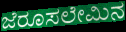
ಜೆರೂಸಲೇಮಿನ